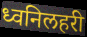
ध्वनिलहरी